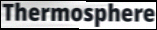
Thermosphere